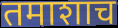
तमाशाच